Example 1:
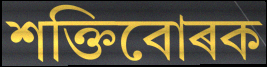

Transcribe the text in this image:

শক্তিবোৰক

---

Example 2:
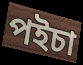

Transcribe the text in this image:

পইচা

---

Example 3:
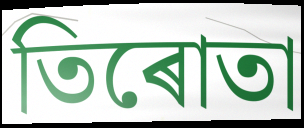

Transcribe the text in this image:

তিৰোতা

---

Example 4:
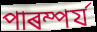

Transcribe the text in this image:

পাৰম্পৰ্য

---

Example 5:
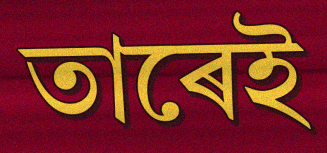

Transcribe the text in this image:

তাৰেই